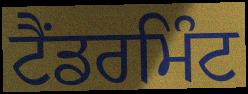
ਟੈਂਡਰਮਿੰਟ